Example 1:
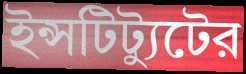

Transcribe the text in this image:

ইন্সটিট্যুটের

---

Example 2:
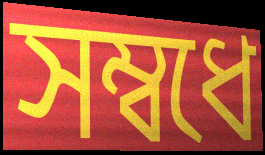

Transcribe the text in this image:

সম্বধে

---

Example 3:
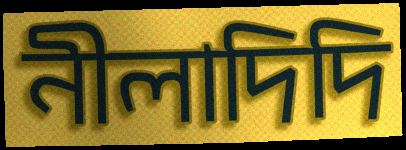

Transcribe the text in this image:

নীলাদিদি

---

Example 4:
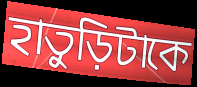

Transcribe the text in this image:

হাতুড়িটাকে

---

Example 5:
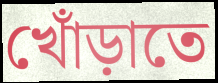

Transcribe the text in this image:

খোঁড়াতে